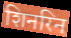
शिनरिन